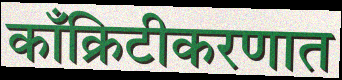
काँक्रिटीकरणात